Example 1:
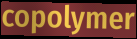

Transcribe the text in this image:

copolymer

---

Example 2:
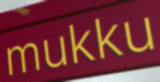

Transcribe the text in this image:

mukku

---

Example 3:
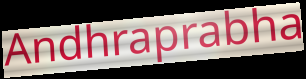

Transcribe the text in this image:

Andhraprabha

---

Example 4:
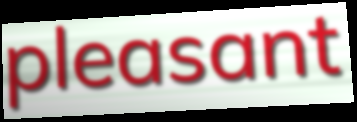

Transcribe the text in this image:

pleasant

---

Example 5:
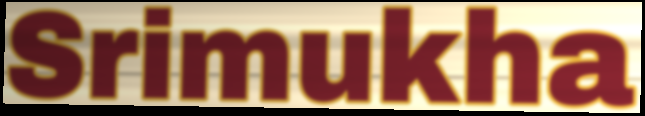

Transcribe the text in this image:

Srimukha